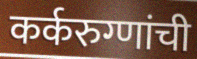
कर्करुग्णांची